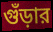
গুঁড়ার